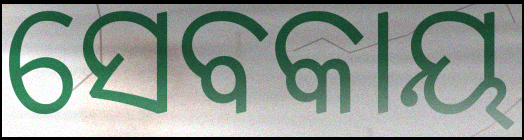
ସେବକାୟ